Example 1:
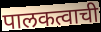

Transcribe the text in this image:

पालकत्वाची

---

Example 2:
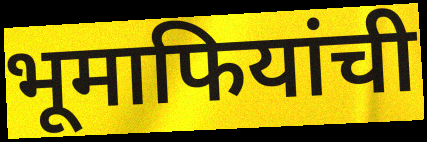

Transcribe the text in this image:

भूमाफियांची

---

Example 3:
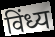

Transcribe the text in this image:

विंध्य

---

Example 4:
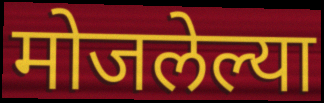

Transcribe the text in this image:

मोजलेल्या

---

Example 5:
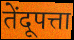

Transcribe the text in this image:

तेंदूपत्ता